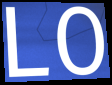
LO